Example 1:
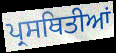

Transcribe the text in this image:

ਪ੍ਰਸਥਿਤੀਆਂ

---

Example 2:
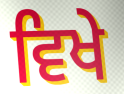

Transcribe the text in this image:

ਵਿਖੇ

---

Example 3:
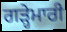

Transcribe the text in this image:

ਗੜ੍ਹੇਮਾਰੀ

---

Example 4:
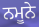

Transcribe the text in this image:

ਨਮੂਨੇ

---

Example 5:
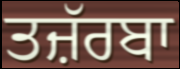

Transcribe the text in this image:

ਤਜ਼ੱਰਬਾ